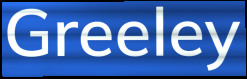
Greeley